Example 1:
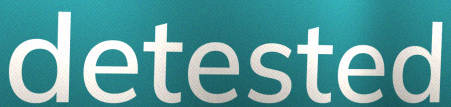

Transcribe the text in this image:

detested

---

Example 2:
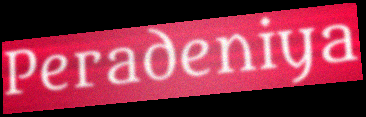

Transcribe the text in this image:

Peradeniya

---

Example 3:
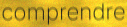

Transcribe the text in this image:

comprendre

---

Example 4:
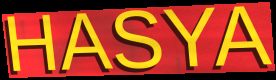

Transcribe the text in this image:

HASYA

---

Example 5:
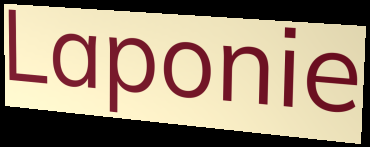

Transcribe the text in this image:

Laponie